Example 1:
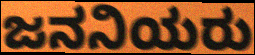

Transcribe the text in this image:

ಜನನಿಯರು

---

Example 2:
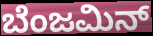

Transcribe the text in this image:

ಬೆಂಜಮಿನ್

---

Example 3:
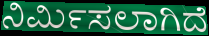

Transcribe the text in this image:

ನಿರ್ಮಿಸಲಾಗಿದೆ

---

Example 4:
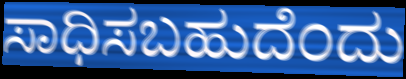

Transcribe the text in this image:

ಸಾಧಿಸಬಹುದೆಂದು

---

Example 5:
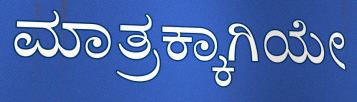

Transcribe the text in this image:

ಮಾತ್ರಕ್ಕಾಗಿಯೇ